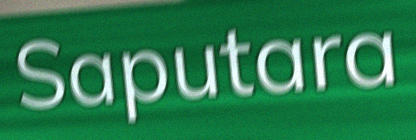
Saputara